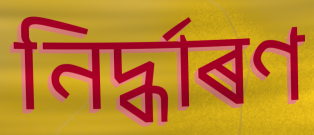
নিৰ্দ্ধাৰণ